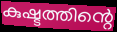
കുഷ്ടത്തിന്റെ